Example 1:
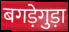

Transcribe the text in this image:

बगड़ेगुड़ा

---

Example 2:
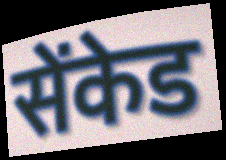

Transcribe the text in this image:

सेंकेड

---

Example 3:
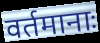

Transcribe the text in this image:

वर्तमानाः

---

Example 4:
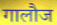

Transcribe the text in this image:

गालौज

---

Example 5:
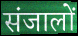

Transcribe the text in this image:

संजालों